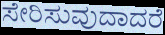
ಸೇರಿಸುವುದಾದರೆ